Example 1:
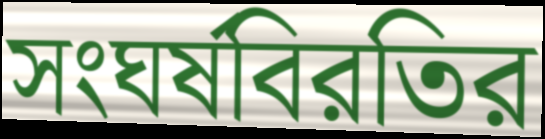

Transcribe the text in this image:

সংঘর্ষবিরতির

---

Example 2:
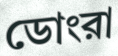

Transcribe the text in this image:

ডোংরা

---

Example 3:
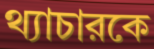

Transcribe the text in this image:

থ্যাচারকে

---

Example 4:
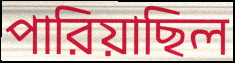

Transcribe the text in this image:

পারিয়াছিল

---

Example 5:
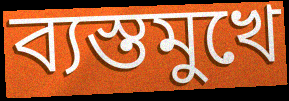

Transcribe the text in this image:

ব্যস্তমুখে